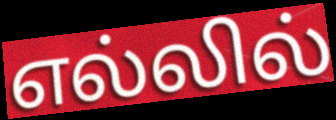
எல்லில்